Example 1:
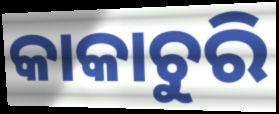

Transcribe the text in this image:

କାକାଚୁରି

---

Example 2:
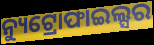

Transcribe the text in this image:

ନ୍ୟୁଟ୍ରୋଫାଇଲ୍ସର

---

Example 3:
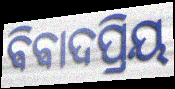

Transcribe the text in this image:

ଵିଵାଦପ୍ରିୟ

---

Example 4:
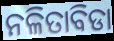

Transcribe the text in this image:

ନଳିତାବିଡା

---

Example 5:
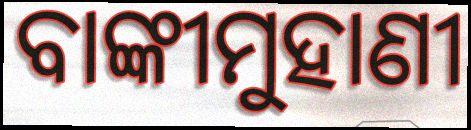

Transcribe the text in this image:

ବାଙ୍କୀମୁହାଣୀ